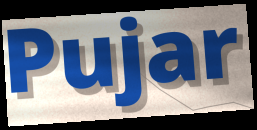
Pujar